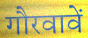
गौरवावें